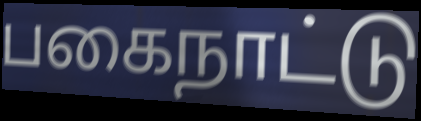
பகைநாட்டு